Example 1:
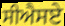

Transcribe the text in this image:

ਸੀਐਸਏ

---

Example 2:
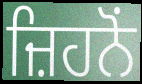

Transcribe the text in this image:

ਜ਼ਿਹਨੋਂ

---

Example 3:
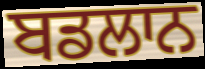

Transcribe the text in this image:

ਬਡਲਾਨ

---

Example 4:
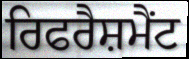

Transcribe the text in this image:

ਰਿਫਰੈਸ਼ਮੈਂਟ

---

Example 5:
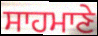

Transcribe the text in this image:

ਸਾਹਮਾਣੇ